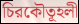
চিরকৌতূহলী